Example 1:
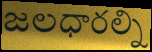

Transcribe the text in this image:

జలధారల్ని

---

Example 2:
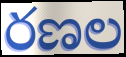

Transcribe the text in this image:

రణల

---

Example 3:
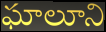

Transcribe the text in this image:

ఘాలూని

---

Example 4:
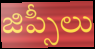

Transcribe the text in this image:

జిప్సీలు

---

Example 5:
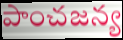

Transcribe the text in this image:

పాంచజన్య